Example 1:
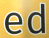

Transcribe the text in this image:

ed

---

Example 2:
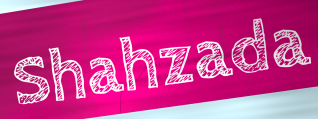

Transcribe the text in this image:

Shahzada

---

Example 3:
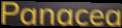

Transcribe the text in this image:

Panacea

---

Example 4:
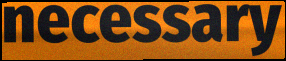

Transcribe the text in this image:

necessary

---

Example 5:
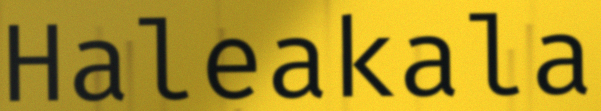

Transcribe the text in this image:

Haleakala